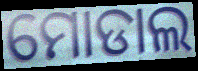
ମୋଡାଲ